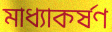
মাধ্যাকৰ্ষণ